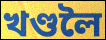
খণ্ডলৈ